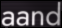
aand